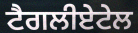
ਟੈਗਲੀਏਟੇਲ